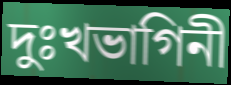
দুঃখভাগিনী